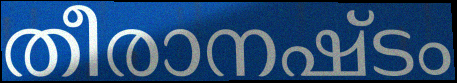
തീരാനഷ്ടം